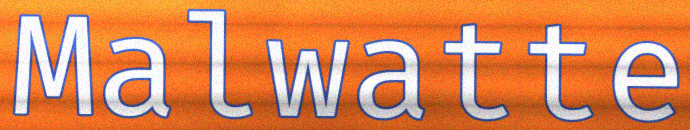
Malwatte